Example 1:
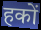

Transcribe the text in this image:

हकों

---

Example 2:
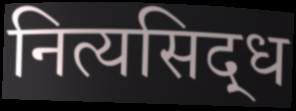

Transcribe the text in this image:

नित्यसिद्ध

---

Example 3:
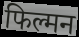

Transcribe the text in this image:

फिल्मन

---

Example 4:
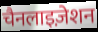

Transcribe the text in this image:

चैनलाइज़ेशन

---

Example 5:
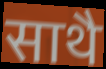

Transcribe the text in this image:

साथै